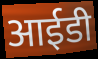
आईडी